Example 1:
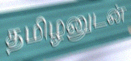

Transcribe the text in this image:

தமிழனுடன்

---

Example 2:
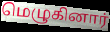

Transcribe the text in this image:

மெழுகினார்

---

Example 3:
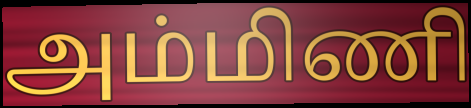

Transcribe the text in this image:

அம்மிணி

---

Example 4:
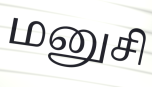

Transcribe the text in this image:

மனுசி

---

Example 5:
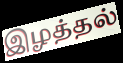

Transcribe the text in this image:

இழத்தல்